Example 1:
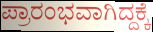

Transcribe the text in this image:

ಪ್ರಾರಂಭವಾಗಿದ್ದಕ್ಕೆ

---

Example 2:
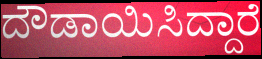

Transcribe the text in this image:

ದೌಡಾಯಿಸಿದ್ದಾರೆ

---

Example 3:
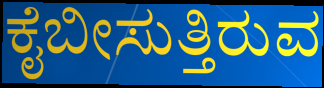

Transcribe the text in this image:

ಕೈಬೀಸುತ್ತಿರುವ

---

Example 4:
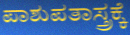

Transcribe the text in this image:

ಪಾಶುಪತಾಸ್ತ್ರಕ್ಕೆ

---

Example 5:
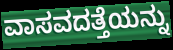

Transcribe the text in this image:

ವಾಸವದತ್ತೆಯನ್ನು